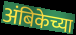
अंबिकेच्या